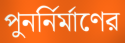
পুনর্নির্মাণের